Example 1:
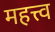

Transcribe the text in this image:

महत्त्व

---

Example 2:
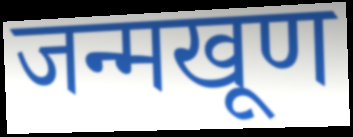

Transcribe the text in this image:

जन्मखूण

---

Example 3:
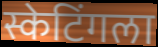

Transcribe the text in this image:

स्केटिंगला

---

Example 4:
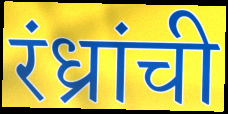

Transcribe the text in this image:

रंध्रांची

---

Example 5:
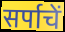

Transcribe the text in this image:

सर्पाचें